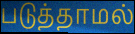
படுத்தாமல்